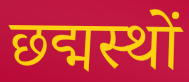
छद्मस्थों